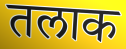
तलाक